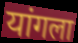
यांगला